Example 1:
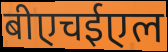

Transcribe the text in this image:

बीएचईएल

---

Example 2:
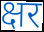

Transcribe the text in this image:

क्षर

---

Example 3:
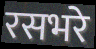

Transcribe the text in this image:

रसभरे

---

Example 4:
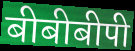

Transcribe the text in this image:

बीबीबीपी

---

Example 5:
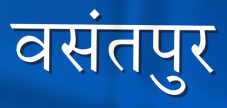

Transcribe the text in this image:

वसंतपुर